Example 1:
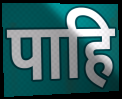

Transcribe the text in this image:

पाहि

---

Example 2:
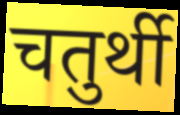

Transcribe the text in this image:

चतुर्थी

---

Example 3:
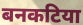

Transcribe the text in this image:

बनकटिया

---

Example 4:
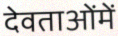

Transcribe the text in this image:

देवताओंमें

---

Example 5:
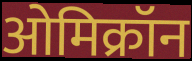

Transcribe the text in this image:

ओमिक्रॉन